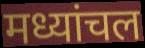
मध्यांचल